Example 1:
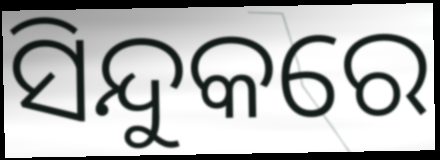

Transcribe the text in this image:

ସିନ୍ଦୁକରେ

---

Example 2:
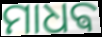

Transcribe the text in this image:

ମାଧଵ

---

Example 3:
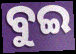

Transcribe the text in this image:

ବୁଇ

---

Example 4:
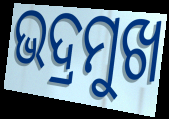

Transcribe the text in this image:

ଭଦ୍ରମୁଖ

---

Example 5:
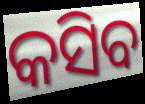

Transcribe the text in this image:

କସିବ